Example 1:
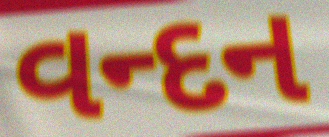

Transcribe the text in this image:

વન્દન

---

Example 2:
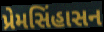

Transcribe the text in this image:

પ્રેમસિંહાસન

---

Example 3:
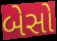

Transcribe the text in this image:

બેસો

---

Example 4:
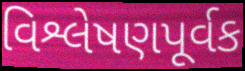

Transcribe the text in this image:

વિશ્લેષણપૂર્વક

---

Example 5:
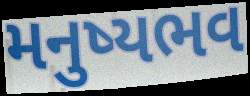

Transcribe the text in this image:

મનુષ્યભવ